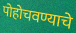
पोहोचवण्याचे